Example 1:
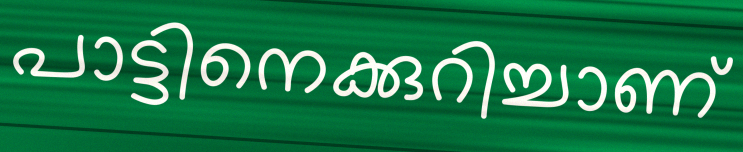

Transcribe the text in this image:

പാട്ടിനെക്കുറിച്ചാണ്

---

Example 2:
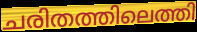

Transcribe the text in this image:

ചരിതത്തിലെത്തി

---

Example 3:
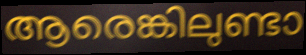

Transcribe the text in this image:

ആരെങ്കിലുണ്ടാ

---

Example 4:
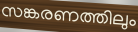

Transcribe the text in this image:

സങ്കരണത്തിലും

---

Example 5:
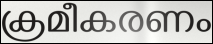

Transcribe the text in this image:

ക്രമീകരണം